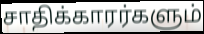
சாதிக்காரர்களும்